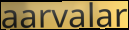
aarvalar